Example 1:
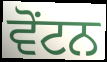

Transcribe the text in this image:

ਵੋਂਟਨ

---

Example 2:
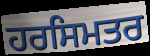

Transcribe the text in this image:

ਹਰਸਿਮਤਰ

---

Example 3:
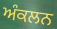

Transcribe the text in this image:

ਅੰਕਲਨ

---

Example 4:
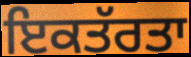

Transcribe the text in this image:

ਇਕਤੱਰਤਾ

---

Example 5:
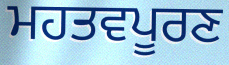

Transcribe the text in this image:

ਮਹਤਵਪੂਰਣ